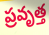
ప్రవృత్త